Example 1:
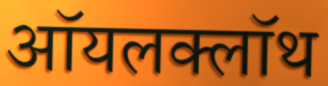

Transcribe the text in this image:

ऑयलक्लॉथ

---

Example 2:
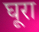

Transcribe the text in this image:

घूरा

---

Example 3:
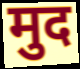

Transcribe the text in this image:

मुद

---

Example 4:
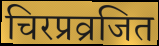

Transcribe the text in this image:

चिरप्रव्रजित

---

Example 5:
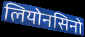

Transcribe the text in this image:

लियोनसिनो